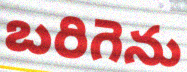
బరిగెను